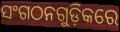
ସଂଗଠନଗୁଡ଼ିକରେ